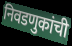
निवडणुकांची